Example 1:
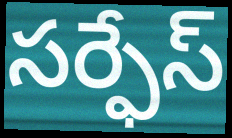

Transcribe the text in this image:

సర్ఫేస్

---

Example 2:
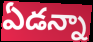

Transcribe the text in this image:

ఏడన్నా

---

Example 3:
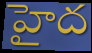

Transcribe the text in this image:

హైద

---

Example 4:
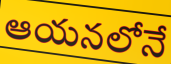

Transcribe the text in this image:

ఆయనలోనే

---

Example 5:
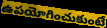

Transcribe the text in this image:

ఉపయోగించుకుంటే